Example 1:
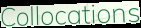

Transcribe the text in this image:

Collocations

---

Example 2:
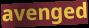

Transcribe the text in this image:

avenged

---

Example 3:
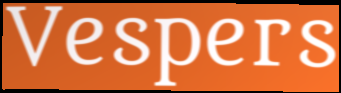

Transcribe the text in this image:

Vespers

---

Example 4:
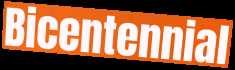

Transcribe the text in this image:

Bicentennial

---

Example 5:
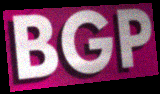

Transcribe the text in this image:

BGP